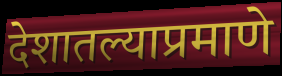
देशातल्याप्रमाणे